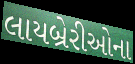
લાયબ્રેરીઓના